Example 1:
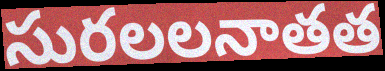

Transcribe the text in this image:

సురలలనాతత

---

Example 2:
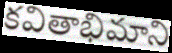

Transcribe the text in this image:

కవితాభిమాని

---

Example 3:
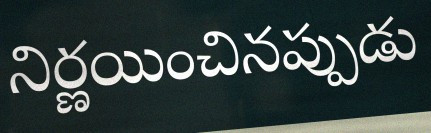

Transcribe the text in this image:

నిర్ణయించినప్పుడు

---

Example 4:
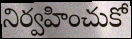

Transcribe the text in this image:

నిర్వహించుకో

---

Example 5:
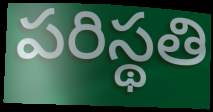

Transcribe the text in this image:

పరిస్థతి